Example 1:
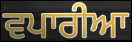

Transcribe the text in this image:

ਵਪਾਰੀਆ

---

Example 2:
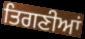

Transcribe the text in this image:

ਤਿਗਣੀਆਂ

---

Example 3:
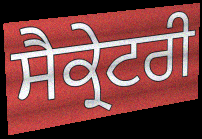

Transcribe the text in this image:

ਸੈਕ੍ਰੇਟਰੀ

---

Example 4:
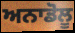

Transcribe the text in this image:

ਅਨਾਡੋਲੂ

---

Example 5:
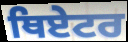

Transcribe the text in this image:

ਥਿਏਟਰ